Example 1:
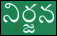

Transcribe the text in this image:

నిర్జన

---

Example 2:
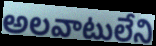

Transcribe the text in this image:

అలవాటులేని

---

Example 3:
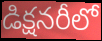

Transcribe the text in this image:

డిక్షనరీలో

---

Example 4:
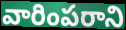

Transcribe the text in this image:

వారింపరాని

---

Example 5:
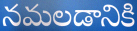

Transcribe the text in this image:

నమలడానికి